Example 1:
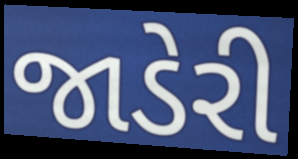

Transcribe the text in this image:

જાડેરી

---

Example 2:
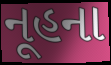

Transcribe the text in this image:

નૂહના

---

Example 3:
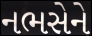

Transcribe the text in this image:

નભસેને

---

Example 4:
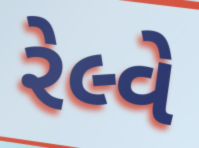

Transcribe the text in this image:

રેલ્વે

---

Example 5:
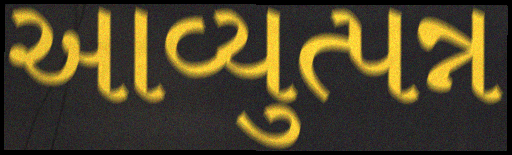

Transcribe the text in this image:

આવ્યુત્પન્ન